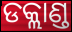
ଡକ୍ଲାଣ୍ଡ